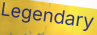
Legendary